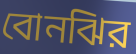
বোনঝির